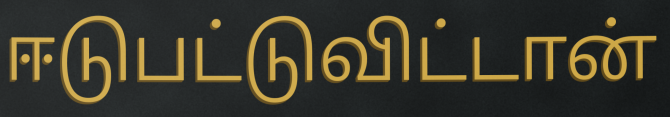
ஈடுபட்டுவிட்டான்